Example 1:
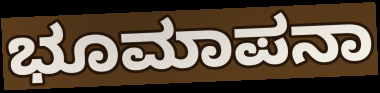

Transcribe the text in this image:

ಭೂಮಾಪನಾ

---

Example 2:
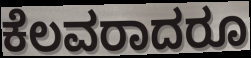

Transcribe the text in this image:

ಕೆಲವರಾದರೂ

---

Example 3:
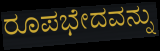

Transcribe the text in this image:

ರೂಪಭೇದವನ್ನು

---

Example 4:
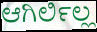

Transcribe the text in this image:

ಆಗಿರ್ಲಿಲ್ಲ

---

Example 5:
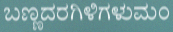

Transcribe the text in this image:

ಬಣ್ಣದರಗಿಳಿಗಳುಮಂ